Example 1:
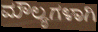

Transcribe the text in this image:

ಮೌಲ್ಯಗಳಾಗಿ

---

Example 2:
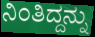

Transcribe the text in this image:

ನಿಂತಿದ್ದನ್ನು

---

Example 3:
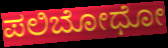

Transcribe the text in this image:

ಪಲಿಬೋಧೋ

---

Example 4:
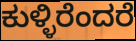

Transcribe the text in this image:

ಕುಳ್ಳಿರೆಂದರೆ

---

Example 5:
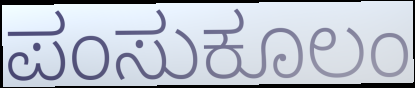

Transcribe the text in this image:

ಪಂಸುಕೂಲಂ